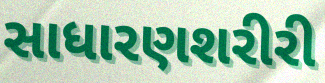
સાધારણશરીરી